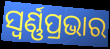
ସ୍ୱର୍ଣ୍ଣପ୍ରଭାର